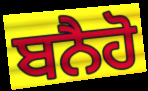
ਬਨੈਹੋ